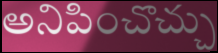
అనిపించొచ్చు